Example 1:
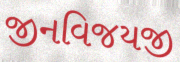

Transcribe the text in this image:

જીનવિજયજી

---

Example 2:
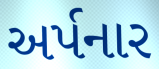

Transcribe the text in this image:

અર્પનાર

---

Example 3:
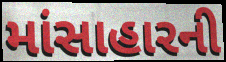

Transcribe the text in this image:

માંસાહારની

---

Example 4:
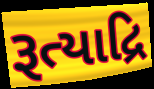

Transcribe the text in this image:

રૂત્યાદ્રિ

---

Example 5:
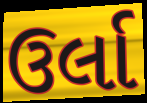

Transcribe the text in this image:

ઉર્લા